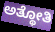
ಅತ್ಥೋತಿ